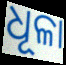
ଧୂଳା